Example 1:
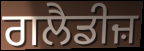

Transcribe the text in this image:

ਗਲੈਡੀਜ਼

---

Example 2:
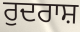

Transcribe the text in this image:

ਰੁਦਰਾਸ਼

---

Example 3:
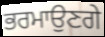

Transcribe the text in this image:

ਭਰਮਾਉਣਗੇ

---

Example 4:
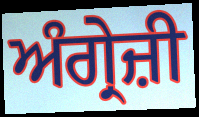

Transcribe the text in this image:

ਅੰਗ੍ਰੇਜ਼ੀ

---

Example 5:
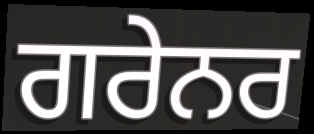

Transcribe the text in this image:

ਗਰੇਨਰ